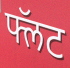
फ्लॅट